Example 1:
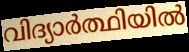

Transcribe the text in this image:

വിദ്യാർത്ഥിയിൽ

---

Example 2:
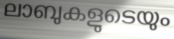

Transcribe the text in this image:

ലാബുകളുടെയും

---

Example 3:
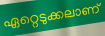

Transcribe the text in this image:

ഏറ്റെടുക്കലാണ്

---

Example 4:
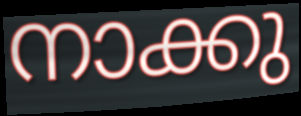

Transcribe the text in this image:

നാക്കു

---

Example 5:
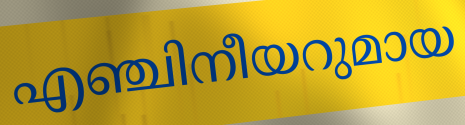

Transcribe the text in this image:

എഞ്ചിനീയറുമായ